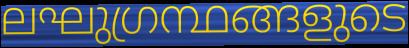
ലഘുഗ്രന്ഥങ്ങളുടെ